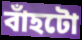
বাঁহটো